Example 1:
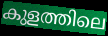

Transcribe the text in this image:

കുളത്തിലെ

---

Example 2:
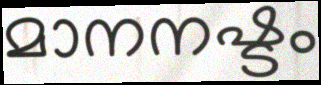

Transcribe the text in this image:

മാനനഷ്ടം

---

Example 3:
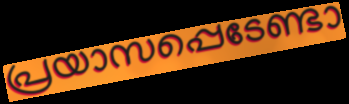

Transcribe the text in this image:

പ്രയാസപ്പെടേണ്ടാ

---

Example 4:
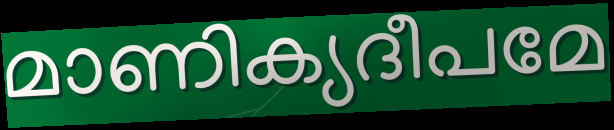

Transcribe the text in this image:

മാണിക്യദീപമേ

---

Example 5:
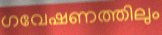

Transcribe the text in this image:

ഗവേഷണത്തിലും